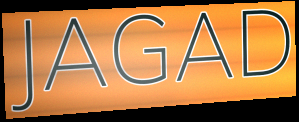
JAGAD